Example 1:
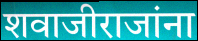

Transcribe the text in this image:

शवाजीराजांना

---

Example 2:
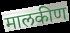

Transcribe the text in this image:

मालकीण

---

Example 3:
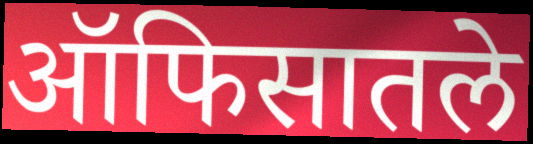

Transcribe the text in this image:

ऑफिसातले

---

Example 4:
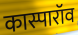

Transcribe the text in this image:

कास्पारॉव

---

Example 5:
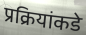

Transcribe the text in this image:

प्रक्रियांकडे